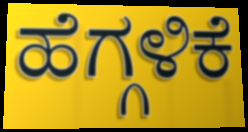
ಹೆಗ್ಗಳಿಕೆ